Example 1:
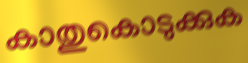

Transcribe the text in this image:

കാതുകൊടുക്കുക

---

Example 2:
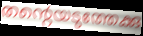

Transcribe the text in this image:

തന്റെയടുത്തേക്കു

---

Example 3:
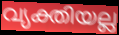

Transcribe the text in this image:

വ്യക്തിയല്ല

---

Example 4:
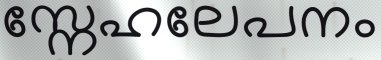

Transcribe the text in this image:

സ്നേഹലേപനം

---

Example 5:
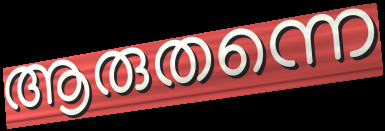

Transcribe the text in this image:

ആരുതന്നെ